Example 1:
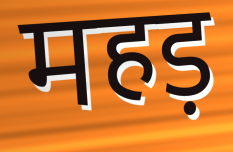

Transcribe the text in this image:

महड़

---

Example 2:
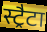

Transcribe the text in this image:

स्ट्रैटा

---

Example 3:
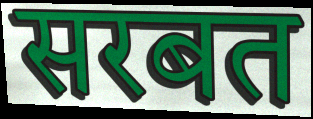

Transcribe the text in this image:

सरबत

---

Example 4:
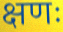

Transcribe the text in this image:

क्षणः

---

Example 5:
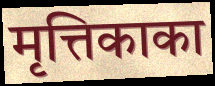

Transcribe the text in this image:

मृत्तिकाका